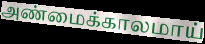
அண்மைக்காலமாய்